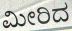
ಮೀರಿದ